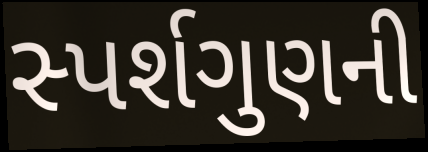
સ્પર્શગુણની